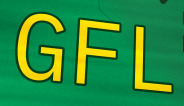
GFL